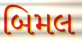
બિમલ